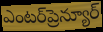
ఎంటర్‌ప్రెన్యూర్